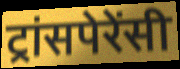
ट्रांसपेरेंसी